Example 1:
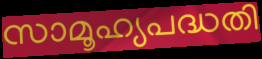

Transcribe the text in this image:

സാമൂഹ്യപദ്ധതി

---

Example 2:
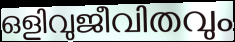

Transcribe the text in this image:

ഒളിവുജീവിതവും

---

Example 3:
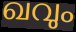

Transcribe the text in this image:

ഖവും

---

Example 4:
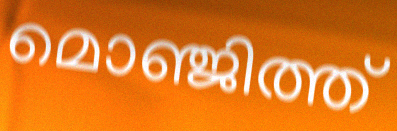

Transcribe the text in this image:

മൊഞ്ജിത്ത്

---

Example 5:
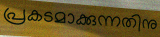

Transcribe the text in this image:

പ്രകടമാക്കുന്നതിനു